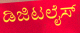
ಡಿಜಿಟಲೈಸ್